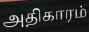
அதிகாரம்